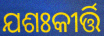
ଯଶଃକୀର୍ତ୍ତି